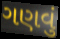
ગણવું